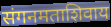
संगनमताशिवाय